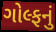
ગોલ્ફનું